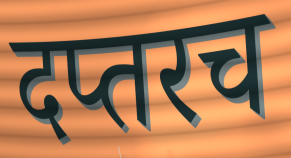
दप्तरच